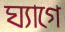
ঘ্যাগে